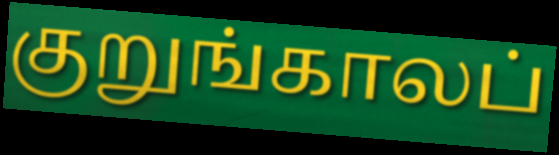
குறுங்காலப்